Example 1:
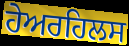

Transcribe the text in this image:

ਹੇਅਰਹਿਲਸ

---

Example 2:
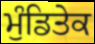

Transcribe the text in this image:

ਮੁੰਡਿਤੇਕ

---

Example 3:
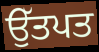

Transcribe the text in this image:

ਉੱਤਪਤ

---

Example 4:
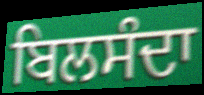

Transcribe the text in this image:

ਬਿਲਸੰਦਾ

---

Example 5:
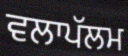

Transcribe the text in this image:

ਵਲਾਪੱਲਮ